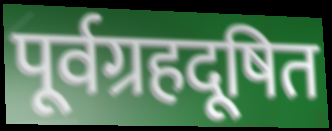
पूर्वग्रहदूषित